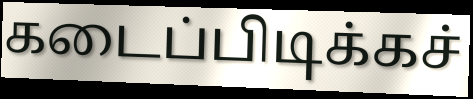
கடைப்பிடிக்கச்